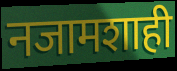
नजामशाही